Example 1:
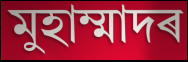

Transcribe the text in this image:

মুহাম্মাদৰ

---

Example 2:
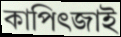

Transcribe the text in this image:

কাপিৎজাই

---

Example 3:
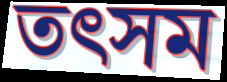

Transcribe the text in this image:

তৎসম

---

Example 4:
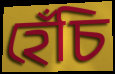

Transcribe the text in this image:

হেঁচি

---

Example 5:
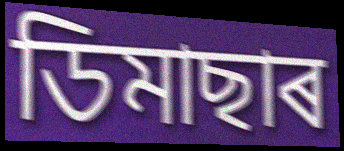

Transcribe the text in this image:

ডিমাছাৰ